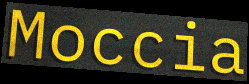
Moccia